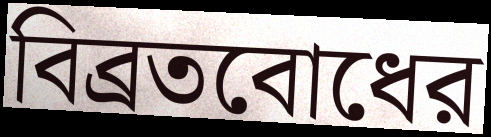
বিব্রতবোধের